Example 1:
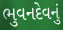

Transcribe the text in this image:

ભુવનદેવનું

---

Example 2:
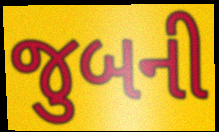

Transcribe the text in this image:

જુબની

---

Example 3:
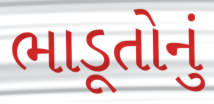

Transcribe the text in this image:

ભાડૂતોનું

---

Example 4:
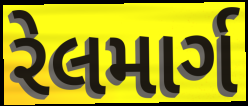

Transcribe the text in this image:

રેલમાર્ગ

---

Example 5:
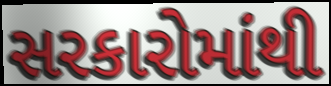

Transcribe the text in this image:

સરકારોમાંથી